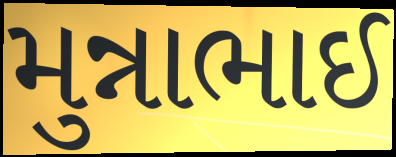
મુન્નાભાઈ